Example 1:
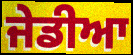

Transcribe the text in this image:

ਜੇਡੀਆ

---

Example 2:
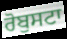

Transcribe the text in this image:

ਰੋਬੁਸਟਾ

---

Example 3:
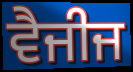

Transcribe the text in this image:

ਵੈਜੀਜ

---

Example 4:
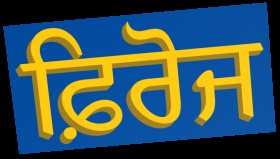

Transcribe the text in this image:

ਫ਼ਿਰੋਜ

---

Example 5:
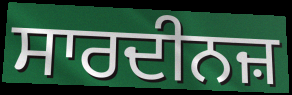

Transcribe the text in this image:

ਸਾਰਦੀਨਜ਼